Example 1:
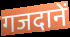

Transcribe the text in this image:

गजदानें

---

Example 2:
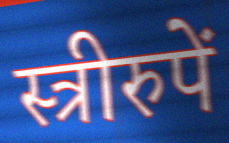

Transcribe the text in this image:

स्त्रीरुपें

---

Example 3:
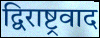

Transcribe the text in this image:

द्विराष्ट्रवाद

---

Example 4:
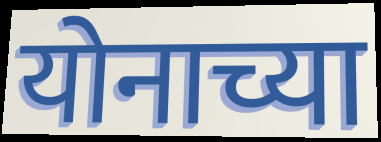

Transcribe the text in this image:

योनाच्या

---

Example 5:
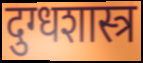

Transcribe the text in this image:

दुग्धशास्त्र